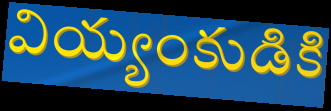
వియ్యంకుడికి